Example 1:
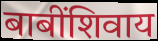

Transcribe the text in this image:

बाबींशिवाय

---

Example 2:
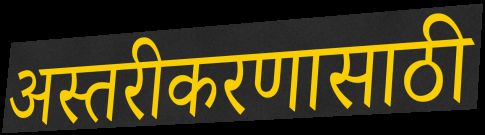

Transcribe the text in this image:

अस्तरीकरणासाठी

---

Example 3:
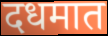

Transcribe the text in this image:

दधमात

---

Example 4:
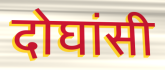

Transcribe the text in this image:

दोघांसी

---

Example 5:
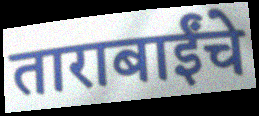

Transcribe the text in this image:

ताराबाईंचे